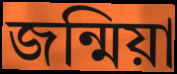
জন্মিয়া